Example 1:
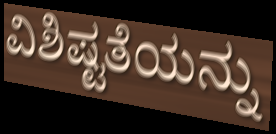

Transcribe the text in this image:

ವಿಶಿಷ್ಟತೆಯನ್ನು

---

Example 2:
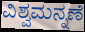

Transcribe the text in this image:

ವಿಶ್ವಮನ್ನಣೆ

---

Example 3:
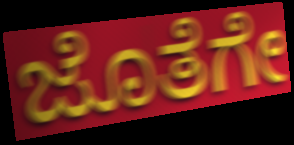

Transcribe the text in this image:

ಜೊತೆಗೇ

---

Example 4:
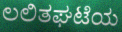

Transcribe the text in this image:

ಲಲಿತಘಟೆಯ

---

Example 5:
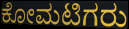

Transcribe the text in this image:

ಕೋಮಟಿಗರು